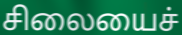
சிலையைச்